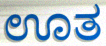
ಊತ